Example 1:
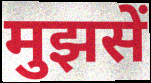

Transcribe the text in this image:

मुझसें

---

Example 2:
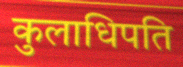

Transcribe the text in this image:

कुलाधिपति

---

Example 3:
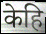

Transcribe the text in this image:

केहि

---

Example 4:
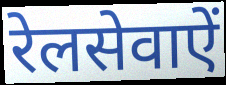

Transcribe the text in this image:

रेलसेवाऐं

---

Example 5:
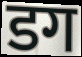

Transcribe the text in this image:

डग